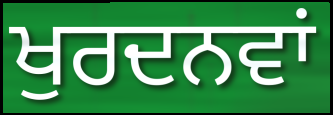
ਖੁਰਦਨਵਾਂ